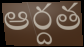
ఆర్దత